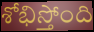
శోభిస్తోంది